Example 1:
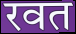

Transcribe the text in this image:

रवत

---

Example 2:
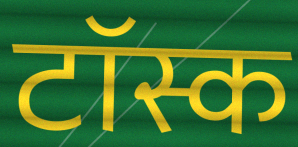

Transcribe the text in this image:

टॉस्‍क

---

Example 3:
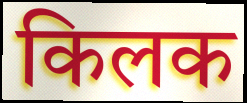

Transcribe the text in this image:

किलक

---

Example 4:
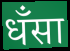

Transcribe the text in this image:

धँसा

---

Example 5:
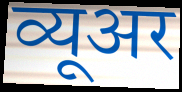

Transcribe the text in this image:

व्यूअर